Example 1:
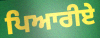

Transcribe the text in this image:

ਪਿਆਰੀਏ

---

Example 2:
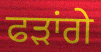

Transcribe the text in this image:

ਫੜਾਂਗੇ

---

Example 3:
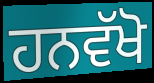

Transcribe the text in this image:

ਹਨਵੱਖੋ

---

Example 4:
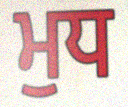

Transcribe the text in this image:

ਮੁਧ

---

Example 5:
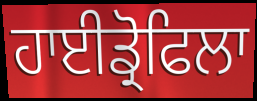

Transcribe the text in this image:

ਹਾਈਡ੍ਰੋਫਿਲਾ